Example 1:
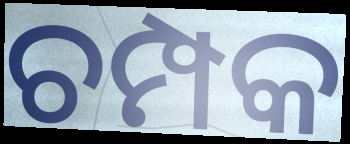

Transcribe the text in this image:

ଚମ୍ପକ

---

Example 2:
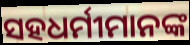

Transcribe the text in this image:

ସହଧର୍ମୀମାନଙ୍କ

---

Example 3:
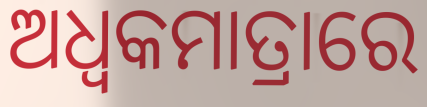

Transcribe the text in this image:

ଅଧ୍ଵକମାତ୍ରାରେ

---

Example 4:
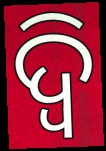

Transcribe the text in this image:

ଦ୍ଵି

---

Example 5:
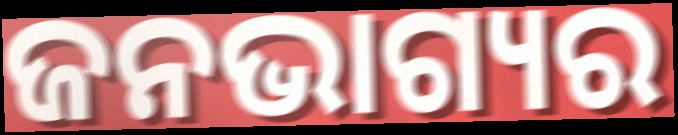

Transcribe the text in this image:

ଜନଭାଗ୍ୟର